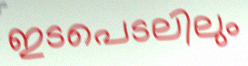
ഇടപെടലിലും